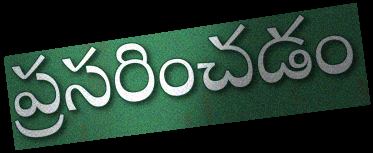
ప్రసరించడం